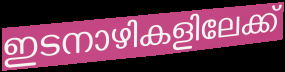
ഇടനാഴികളിലേക്ക്